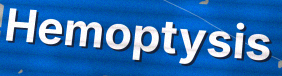
Hemoptysis